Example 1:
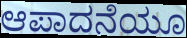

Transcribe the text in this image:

ಆಪಾದನೆಯೂ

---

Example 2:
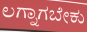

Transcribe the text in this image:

ಲಗ್ನಾಗಬೇಕು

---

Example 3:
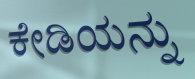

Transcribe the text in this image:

ಕೇಡಿಯನ್ನು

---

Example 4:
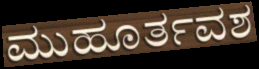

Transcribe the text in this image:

ಮುಹೂರ್ತವಶ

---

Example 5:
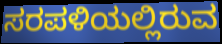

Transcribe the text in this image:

ಸರಪಳಿಯಲ್ಲಿರುವ